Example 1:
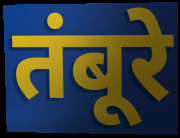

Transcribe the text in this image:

तंबूरे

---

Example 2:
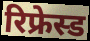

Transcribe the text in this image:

रिफ्रेस्ड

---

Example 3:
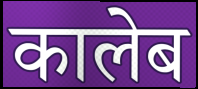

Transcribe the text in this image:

कालेब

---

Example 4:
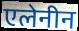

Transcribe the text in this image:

एलेनीन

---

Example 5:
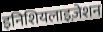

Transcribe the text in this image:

इनिशियलाइज़ेशन